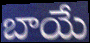
బాయే